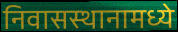
निवासस्थानामध्ये